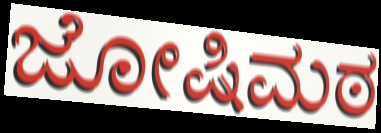
ಜೋಷಿಮಠ